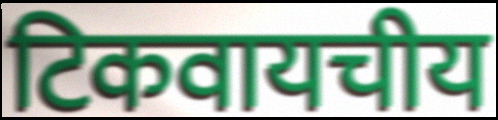
टिकवायचीय